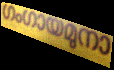
ഗംഗായമുനാ